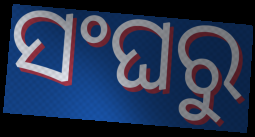
ସଂଘରୁ